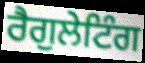
ਰੈਗੁਲੇਟਿੰਗ